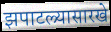
झपाटल्यासारखे